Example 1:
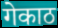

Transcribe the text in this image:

गेकाठ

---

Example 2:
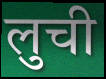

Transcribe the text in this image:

लुची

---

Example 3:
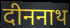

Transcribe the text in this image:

दीननाथ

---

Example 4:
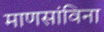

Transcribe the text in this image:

माणसांविना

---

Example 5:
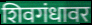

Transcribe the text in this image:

शिवगंधावर